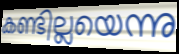
കണ്ടില്ലയെന്നു